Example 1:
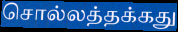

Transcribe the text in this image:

சொல்லத்தக்கது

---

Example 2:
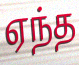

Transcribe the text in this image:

ஏந்த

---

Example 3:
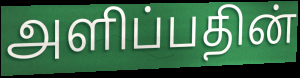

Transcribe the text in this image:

அளிப்பதின்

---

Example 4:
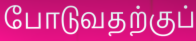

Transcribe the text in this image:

போடுவதற்குப்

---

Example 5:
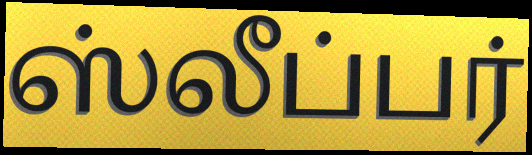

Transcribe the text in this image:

ஸ்லீப்பர்